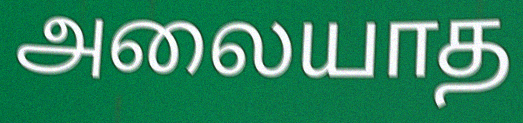
அலையாத